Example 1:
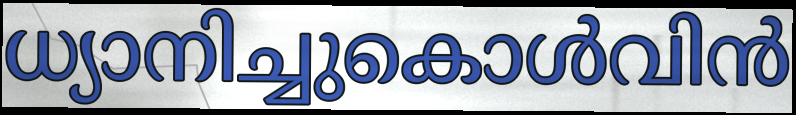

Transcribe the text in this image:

ധ്യാനിച്ചുകൊൾവിൻ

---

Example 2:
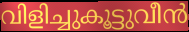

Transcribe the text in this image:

വിളിച്ചുകൂട്ടുവീൻ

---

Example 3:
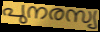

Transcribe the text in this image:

പുനരസ്യ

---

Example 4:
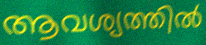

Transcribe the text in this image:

ആവശ്യത്തിൽ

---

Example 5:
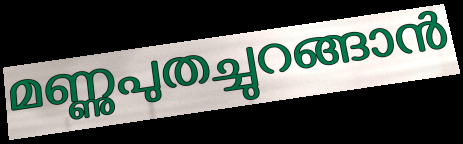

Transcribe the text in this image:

മണ്ണുപുതച്ചുറങ്ങാൻ